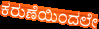
ಕರುಣೆಯಿಂದಲೇ